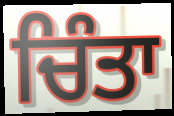
ਚਿੰਤਾ